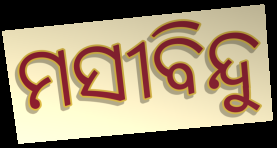
ମସୀବିନ୍ଦୁ